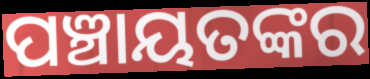
ପଞ୍ଚାୟତଙ୍କର